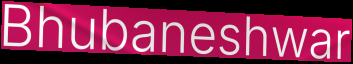
Bhubaneshwar